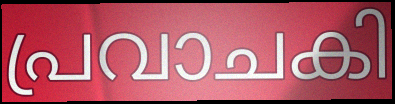
പ്രവാചകി